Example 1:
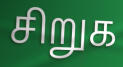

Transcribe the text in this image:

சிறுக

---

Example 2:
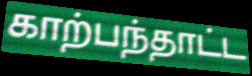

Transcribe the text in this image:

காற்பந்தாட்ட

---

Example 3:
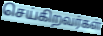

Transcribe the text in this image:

செய்கிறவர்கள்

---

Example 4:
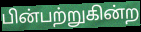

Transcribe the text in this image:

பின்பற்றுகின்ற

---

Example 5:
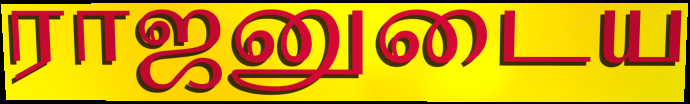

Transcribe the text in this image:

ராஜனுடைய